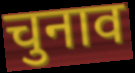
चुनाव